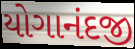
યોગાનંદજી